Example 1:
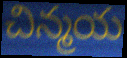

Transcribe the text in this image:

చిన్మయ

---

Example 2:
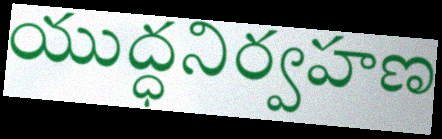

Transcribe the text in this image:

యుద్ధనిర్వహణ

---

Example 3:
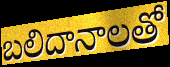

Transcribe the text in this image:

బలిదానాలతో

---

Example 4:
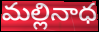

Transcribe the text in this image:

మల్లినాధ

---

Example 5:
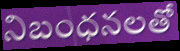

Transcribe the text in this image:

నిబంధనలతో